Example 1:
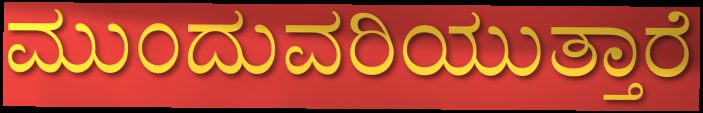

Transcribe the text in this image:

ಮುಂದುವರಿಯುತ್ತಾರೆ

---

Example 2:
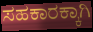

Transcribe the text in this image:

ಸಹಕಾರಕ್ಕಾಗಿ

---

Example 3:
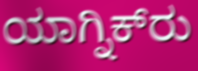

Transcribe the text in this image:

ಯಾಗ್ನಿಕ್‍ರು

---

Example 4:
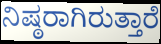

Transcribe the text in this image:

ನಿಷ್ಠರಾಗಿರುತ್ತಾರೆ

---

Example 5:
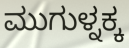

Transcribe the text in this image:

ಮುಗುಳ್ನಕ್ಕ